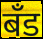
बॅंड